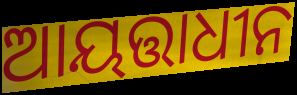
ଆୟତ୍ତାଧୀନ